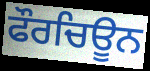
ਫੌਰਚਿਊਨ